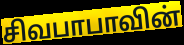
சிவபாபாவின்